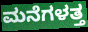
ಮನೆಗಳತ್ತ